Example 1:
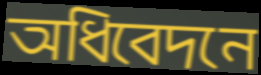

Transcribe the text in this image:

অধিবেদনে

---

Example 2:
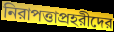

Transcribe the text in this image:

নিরাপত্তাপ্রহরীদের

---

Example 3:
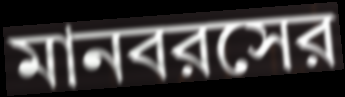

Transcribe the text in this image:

মানবরসের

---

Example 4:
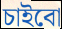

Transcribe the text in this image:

চাইবো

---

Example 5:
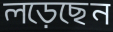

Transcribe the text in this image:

লড়েছেন